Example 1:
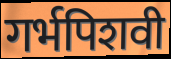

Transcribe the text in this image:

गर्भपिशवी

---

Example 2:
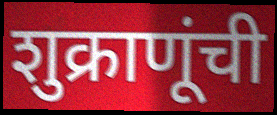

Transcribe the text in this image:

शुक्राणूंची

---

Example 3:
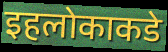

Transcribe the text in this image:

इहलोकाकडे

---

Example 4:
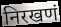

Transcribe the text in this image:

निरखणं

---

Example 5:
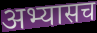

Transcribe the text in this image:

अभ्यासच